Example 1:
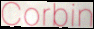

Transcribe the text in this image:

Corbin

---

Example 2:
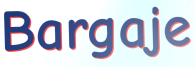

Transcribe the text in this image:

Bargaje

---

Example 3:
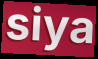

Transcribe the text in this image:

siya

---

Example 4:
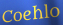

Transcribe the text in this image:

Coehlo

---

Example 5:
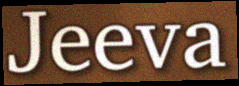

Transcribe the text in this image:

Jeeva